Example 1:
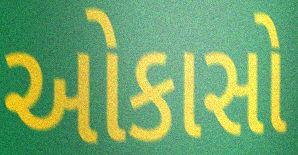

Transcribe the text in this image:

ઓકાસો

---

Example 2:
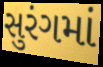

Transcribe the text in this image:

સુરંગમાં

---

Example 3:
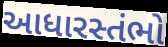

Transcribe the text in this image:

આધારસ્તંભો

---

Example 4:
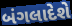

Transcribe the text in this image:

બંગલાદેશે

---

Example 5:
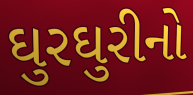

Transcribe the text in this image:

ઘુરઘુરીનો